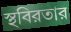
স্থবিরতার